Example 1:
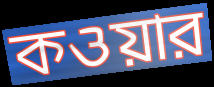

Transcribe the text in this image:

কওয়ার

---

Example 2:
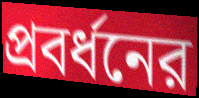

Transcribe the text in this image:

প্রবর্ধনের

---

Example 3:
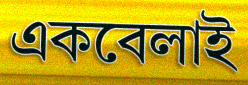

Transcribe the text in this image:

একবেলাই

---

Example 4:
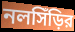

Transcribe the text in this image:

নলসিঁড়ির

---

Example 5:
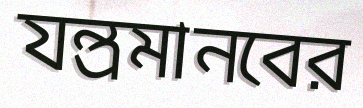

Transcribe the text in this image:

যন্ত্রমানবের